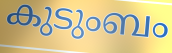
കുടുംബം